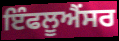
ਇੰਫਲੂਐਂਸਰ